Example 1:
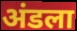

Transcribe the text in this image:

अंडला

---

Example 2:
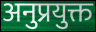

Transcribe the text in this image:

अनुप्रयुक्त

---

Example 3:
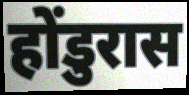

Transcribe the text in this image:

होंडुरास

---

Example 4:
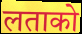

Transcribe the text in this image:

लताको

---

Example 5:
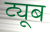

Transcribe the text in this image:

ट्यूब